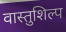
वास्तुशिल्प